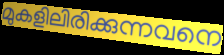
മുകളിലിരിക്കുന്നവനെ